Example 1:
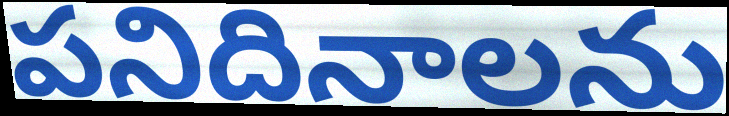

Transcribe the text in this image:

పనిదినాలను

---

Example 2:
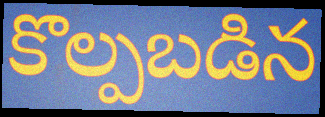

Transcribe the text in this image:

కొల్పబడిన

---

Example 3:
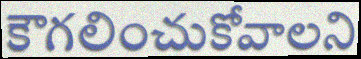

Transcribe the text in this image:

కౌగలించుకోవాలని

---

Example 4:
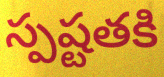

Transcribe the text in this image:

స్పష్టతకి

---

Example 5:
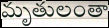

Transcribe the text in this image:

మృతులంతా